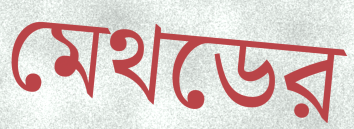
মেথডের